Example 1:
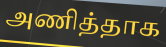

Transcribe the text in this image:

அணித்தாக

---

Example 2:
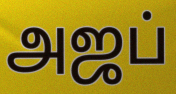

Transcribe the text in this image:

அஜப்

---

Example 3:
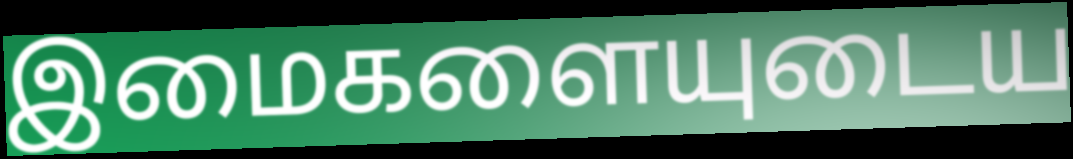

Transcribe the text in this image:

இமைகளையுடைய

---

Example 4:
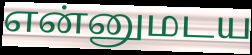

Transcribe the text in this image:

என்னுமடய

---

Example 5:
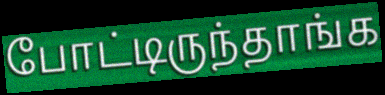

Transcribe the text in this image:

போட்டிருந்தாங்க